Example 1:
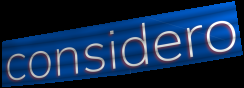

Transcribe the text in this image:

considero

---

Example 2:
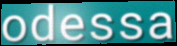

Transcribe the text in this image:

odessa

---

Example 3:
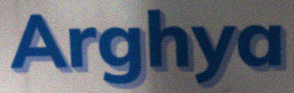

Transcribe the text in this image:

Arghya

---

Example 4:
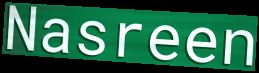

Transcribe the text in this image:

Nasreen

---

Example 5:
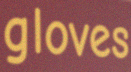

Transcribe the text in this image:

gloves